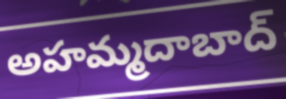
అహమ్మదాబాద్